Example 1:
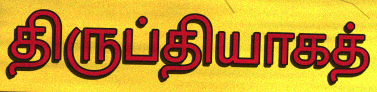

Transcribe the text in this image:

திருப்தியாகத்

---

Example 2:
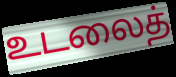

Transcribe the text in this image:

உடலைத்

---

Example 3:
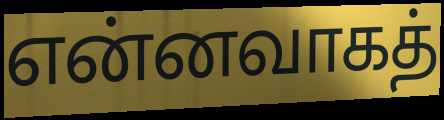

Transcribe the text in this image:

என்னவாகத்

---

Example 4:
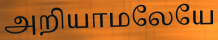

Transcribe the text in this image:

அறியாமலேயே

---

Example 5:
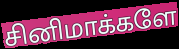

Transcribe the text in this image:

சினிமாக்களே